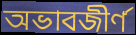
অভাবজীর্ণ